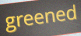
greened